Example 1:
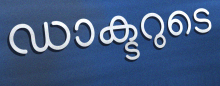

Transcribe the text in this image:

ഡാക്ടറുടെ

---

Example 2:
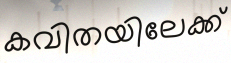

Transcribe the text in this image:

കവിതയിലേക്ക്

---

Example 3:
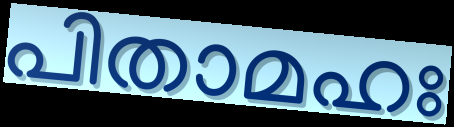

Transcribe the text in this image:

പിതാമഹഃ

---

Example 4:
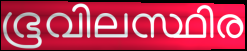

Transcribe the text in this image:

ഭൂവിലസ്ഥിര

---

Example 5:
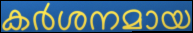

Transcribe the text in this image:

കർശനമായ